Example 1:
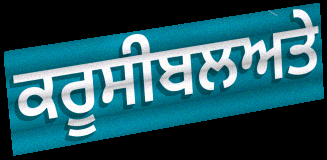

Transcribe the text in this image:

ਕਰੂਸੀਬਲਅਤੇ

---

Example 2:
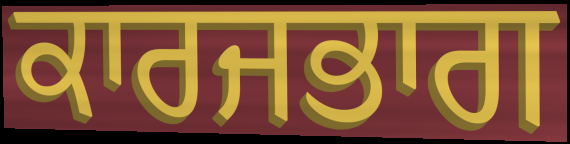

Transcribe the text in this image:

ਕਾਰਜਭਾਗ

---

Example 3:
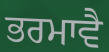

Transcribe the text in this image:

ਭਰਮਾਵੈ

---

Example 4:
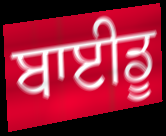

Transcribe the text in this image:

ਬਾਈਡੂ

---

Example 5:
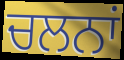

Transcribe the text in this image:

ਚਲਨਾਂ